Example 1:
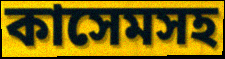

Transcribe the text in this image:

কাসেমসহ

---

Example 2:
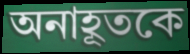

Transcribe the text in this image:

অনাহূতকে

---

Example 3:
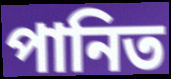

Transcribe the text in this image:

পানিত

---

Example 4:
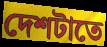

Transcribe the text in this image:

দেশটাতে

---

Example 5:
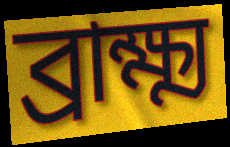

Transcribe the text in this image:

ব্রাক্ষ্ম